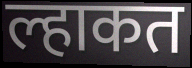
ल्हाकत